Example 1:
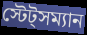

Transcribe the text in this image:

স্টেট্সম্যান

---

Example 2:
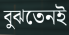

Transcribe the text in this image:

বুঝতেনই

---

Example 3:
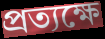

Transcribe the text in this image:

প্রত্যক্ষে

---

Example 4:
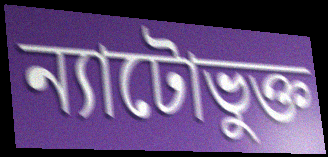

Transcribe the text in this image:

ন্যাটোভুক্ত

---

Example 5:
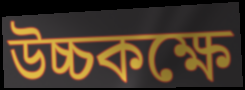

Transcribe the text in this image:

উচ্চকক্ষে